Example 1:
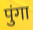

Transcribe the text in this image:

पुंगा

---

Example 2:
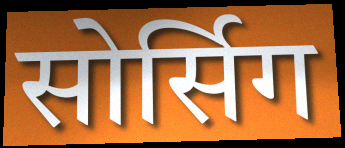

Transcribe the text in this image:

सोर्सिग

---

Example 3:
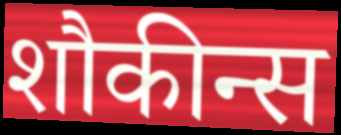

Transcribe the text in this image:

शौकीन्स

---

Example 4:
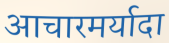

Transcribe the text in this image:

आचारमर्यादा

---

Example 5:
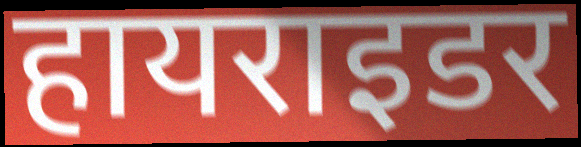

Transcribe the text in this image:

हायराइडर